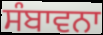
ਸੰਬਾਵਨਾ